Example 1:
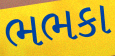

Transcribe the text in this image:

ભભકા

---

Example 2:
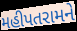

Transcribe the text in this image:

મહીપતરામને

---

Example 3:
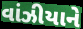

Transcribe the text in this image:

વાંઝીયાને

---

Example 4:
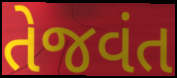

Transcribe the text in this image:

તેજવંત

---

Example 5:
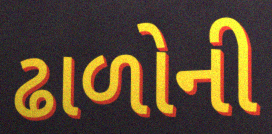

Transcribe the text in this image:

ઢાળોની